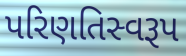
પરિણતિસ્વરૂપ